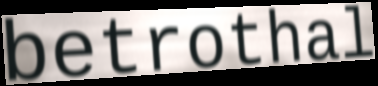
betrothal